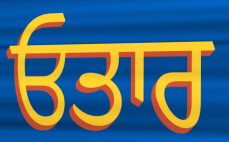
ਓਤਾਰ